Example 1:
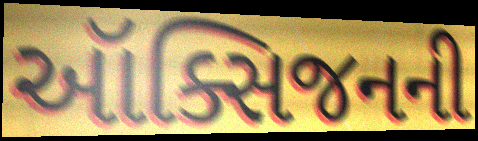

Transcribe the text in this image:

ઑક્સિજનની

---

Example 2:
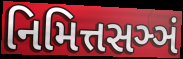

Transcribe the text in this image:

નિમિત્તસઞ્ઞં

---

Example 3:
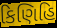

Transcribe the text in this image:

કિણિહિ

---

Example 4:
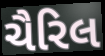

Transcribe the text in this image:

ચૈરિલ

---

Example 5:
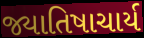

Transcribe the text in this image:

જ્યાતિષાચાર્ય